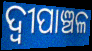
ଦ୍ୱୀପାଞ୍ଚଳ